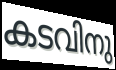
കടവിനു